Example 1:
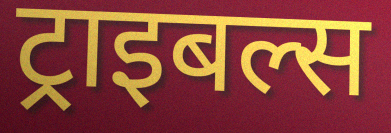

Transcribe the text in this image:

ट्राइबल्स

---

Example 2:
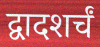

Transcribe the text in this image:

द्वादशर्चं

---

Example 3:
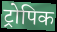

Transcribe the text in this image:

ट्रोपिक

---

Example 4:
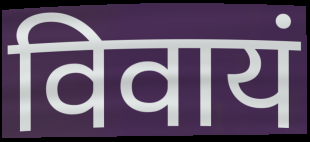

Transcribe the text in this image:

विवायं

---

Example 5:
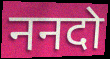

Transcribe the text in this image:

ननदो